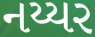
નય્યર